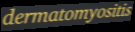
dermatomyositis